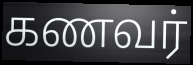
கணவர்